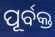
ପୂର୍ବକ୍ତ